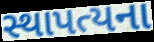
સ્થાપત્યના